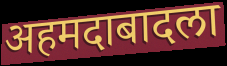
अहमदाबादला